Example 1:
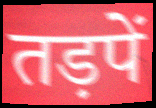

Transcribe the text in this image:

तड़पें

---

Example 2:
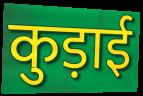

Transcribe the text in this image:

कुड़ाई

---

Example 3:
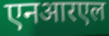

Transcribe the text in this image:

एनआरएल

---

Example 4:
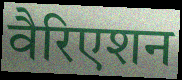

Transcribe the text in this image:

वैरिएशन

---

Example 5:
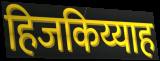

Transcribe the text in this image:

हिजकिय्याह